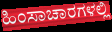
ಹಿಂಸಾಚಾರಗಳಲ್ಲಿ